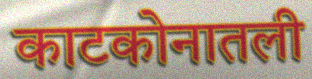
काटकोनातली